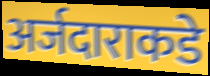
अर्जदाराकडे